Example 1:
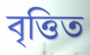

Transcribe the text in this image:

বৃত্তিত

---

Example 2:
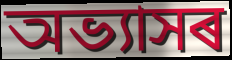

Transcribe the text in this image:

অভ্যাসৰ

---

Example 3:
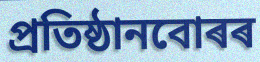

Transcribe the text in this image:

প্ৰতিষ্ঠানবোৰৰ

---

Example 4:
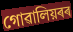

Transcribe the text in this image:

গোৱালিয়ৰৰ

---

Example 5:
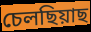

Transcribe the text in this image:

চেলছিয়াছ